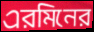
এরমিনের